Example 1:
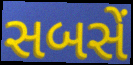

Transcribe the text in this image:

સબસેં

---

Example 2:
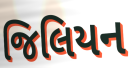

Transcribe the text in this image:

જિલિયન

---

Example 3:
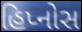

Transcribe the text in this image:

હિપ્નોસ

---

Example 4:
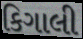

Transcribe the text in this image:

કિગાલી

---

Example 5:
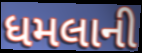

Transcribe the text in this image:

ધમલાની